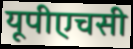
यूपीएचसी